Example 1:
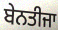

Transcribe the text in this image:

ਬੇਨਤੀਜਾ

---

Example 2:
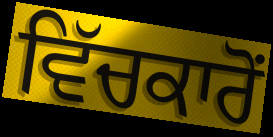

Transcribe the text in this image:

ਵਿੱਚਕਾਰੋਂ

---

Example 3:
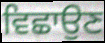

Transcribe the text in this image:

ਵਿਛਾਉਣ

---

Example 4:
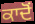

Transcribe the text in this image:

ਕਾਦੋਂ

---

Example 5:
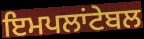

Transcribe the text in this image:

ਇਮਪਲਾਂਟੇਬਲ